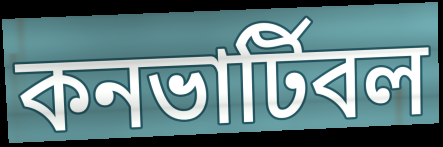
কনভার্টিবল